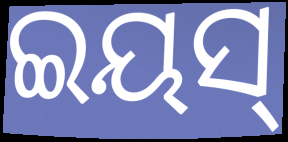
ଇୟସ୍